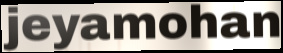
jeyamohan